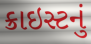
ક્રાઇસ્ટનું